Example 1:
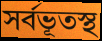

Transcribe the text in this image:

সর্বভূতস্থ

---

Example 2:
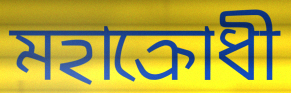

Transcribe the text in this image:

মহাক্রোধী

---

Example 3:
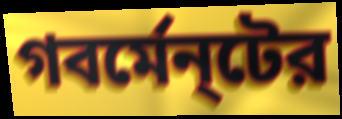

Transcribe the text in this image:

গবর্মেন্‌টের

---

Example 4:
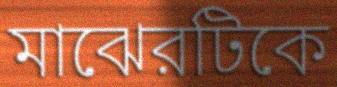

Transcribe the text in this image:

মাঝেরটিকে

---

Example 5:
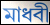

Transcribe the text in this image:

মাধবী